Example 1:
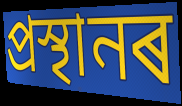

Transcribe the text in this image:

প্ৰস্থানৰ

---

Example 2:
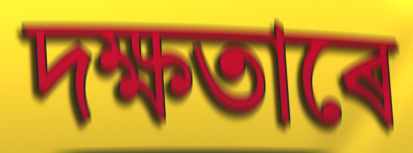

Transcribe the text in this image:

দক্ষতাৰে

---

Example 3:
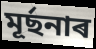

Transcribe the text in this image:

মূৰ্ছনাৰ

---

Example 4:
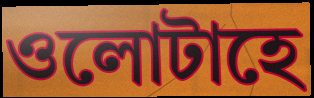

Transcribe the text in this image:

ওলোটাহে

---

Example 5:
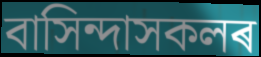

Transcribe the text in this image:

বাসিন্দাসকলৰ